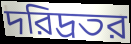
দরিদ্রতর